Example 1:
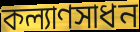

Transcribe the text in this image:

কল্যাণসাধন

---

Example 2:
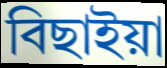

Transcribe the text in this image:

বিছাইয়া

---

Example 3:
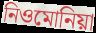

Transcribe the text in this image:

নিওমোনিয়া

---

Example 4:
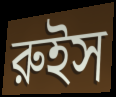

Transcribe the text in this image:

রুইস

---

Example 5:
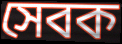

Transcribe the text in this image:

সেবক